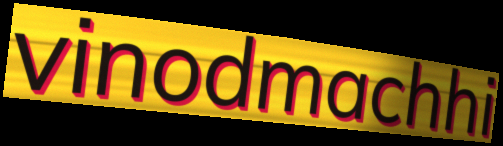
vinodmachhi